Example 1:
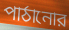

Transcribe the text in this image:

পাঠানোর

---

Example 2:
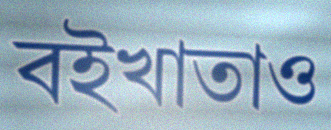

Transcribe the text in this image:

বইখাতাও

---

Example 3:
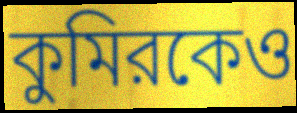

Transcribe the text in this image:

কুমিরকেও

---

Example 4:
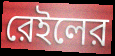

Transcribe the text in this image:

রেইলের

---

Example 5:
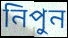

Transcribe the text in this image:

নিপুন